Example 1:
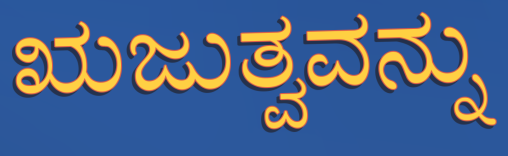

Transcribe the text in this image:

ಋಜುತ್ವವನ್ನು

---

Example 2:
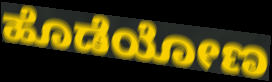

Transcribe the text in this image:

ಹೊಡೆಯೋಣ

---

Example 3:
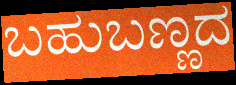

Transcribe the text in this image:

ಬಹುಬಣ್ಣದ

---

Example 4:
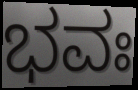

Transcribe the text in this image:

ಭವಃ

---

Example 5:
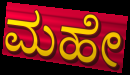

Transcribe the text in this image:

ಮಹೇ